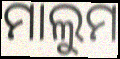
ମାଲୁମ